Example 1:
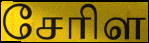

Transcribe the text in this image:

சேரிள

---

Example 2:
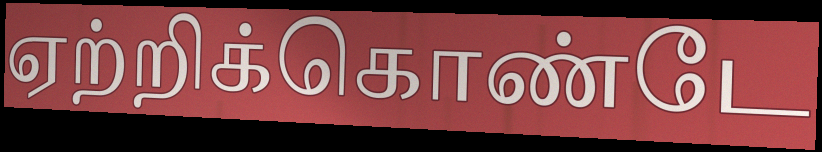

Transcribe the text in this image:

ஏற்றிக்கொண்டே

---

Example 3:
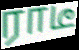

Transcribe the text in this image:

ராடீ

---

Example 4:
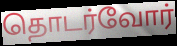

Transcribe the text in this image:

தொடர்வோர்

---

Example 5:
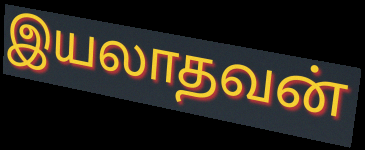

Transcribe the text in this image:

இயலாதவன்